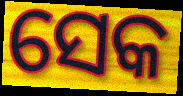
ସେକ